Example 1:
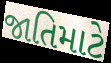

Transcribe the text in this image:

જાતિમાટે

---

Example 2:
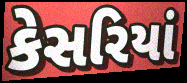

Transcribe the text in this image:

કેસરિયાં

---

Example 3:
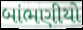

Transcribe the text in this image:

બાંભણીયો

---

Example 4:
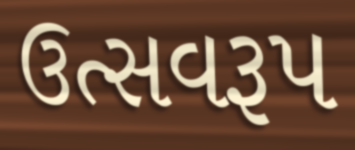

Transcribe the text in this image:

ઉત્સવરૂપ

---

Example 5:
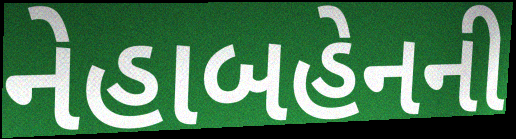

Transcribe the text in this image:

નેહાબહેનની